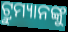
ଟ୍ରୁମ୍ୟାନଙ୍କୁ